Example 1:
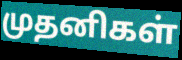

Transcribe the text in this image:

முதனிகள்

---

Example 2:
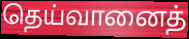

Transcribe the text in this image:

தெய்வானைத்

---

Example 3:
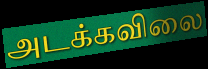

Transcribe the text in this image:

அடக்கவிலை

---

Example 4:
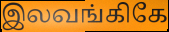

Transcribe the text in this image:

இலவங்கிகே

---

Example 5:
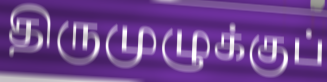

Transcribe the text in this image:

திருமுழுக்குப்